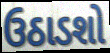
ઉઠાડશો